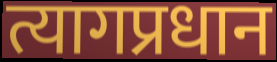
त्यागप्रधान